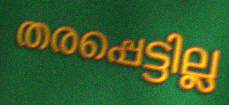
തരപ്പെട്ടില്ല